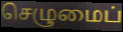
செழுமைப்